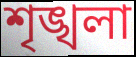
শৃঙ্খলা